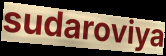
sudaroviya